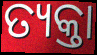
ତ୍ୟକ୍ତା